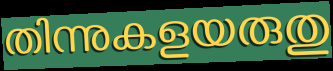
തിന്നുകളയരുതു